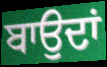
ਬਾਉਦਾਂ